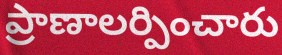
ప్రాణాలర్పించారు